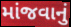
માંજવાનું